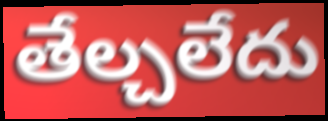
తేల్చలేదు